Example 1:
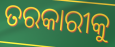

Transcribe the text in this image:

ତରକାରୀକୁ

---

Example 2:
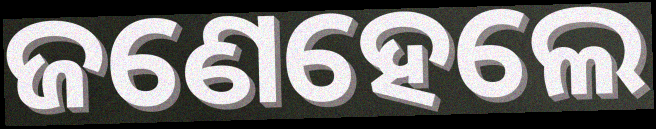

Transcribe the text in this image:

ଜଣେହେଲେ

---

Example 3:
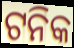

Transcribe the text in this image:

ଟନିକ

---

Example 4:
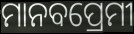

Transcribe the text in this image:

ମାନବପ୍ରେମୀ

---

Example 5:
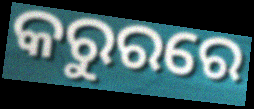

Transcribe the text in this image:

କରୁରରେ